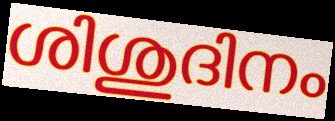
ശിശുദിനം